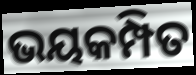
ଭୟକମ୍ପିତ